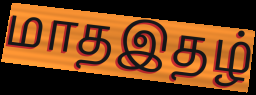
மாதஇதழ்